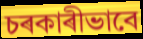
চৰকাৰীভাবে